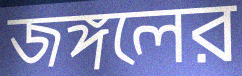
জঙ্গলের